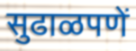
सुढाळपणें